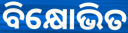
ବିକ୍ଷୋଭିତ